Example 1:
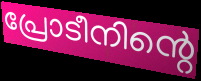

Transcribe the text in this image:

പ്രോടീനിന്റെ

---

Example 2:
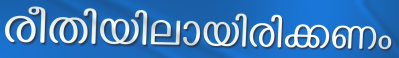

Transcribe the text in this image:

രീതിയിലായിരിക്കണം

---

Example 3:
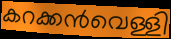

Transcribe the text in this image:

കറക്കൻവെള്ളി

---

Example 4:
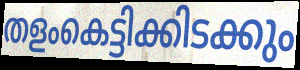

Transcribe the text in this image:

തളംകെട്ടിക്കിടക്കും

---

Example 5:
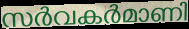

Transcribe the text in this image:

സർവകർമാണി